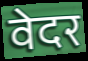
वेदर